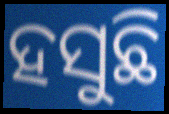
ହସୁଛି